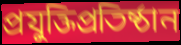
প্রযুক্তিপ্রতিষ্ঠান